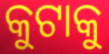
କୁଟାକୁ